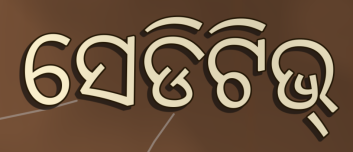
ସେଡିଟିଭ୍